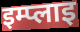
इम्प्लाइ